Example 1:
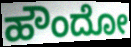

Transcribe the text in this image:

ಹೌಂದೋ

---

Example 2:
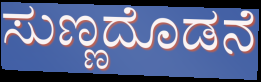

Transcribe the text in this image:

ಸುಣ್ಣದೊಡನೆ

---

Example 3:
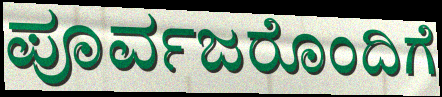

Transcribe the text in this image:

ಪೂರ್ವಜರೊಂದಿಗೆ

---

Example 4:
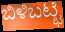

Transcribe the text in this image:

ಬಿಳಿಬಟ್ಟೆ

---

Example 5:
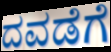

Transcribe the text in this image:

ದವಡೆಗೆ